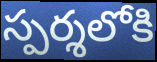
స్పర్శలోకి